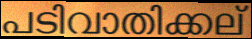
പടിവാതിക്കല്